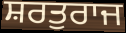
ਸ਼ਰਤੁਰਾਜ